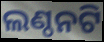
ଲଣ୍ଠନଟି